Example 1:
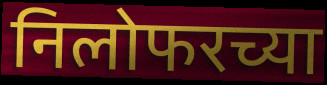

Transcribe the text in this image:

निलोफरच्या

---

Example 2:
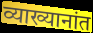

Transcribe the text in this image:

व्याख्यानांत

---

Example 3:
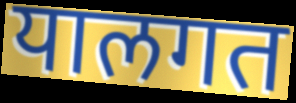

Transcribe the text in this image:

यालगत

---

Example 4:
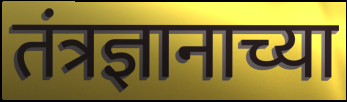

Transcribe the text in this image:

तंत्रज्ञानाच्या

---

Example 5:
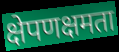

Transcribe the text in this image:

क्षेपणक्षमता